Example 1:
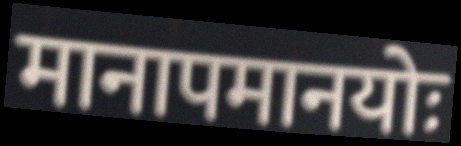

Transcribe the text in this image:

मानापमानयोः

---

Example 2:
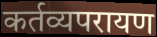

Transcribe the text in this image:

कर्तव्यपरायण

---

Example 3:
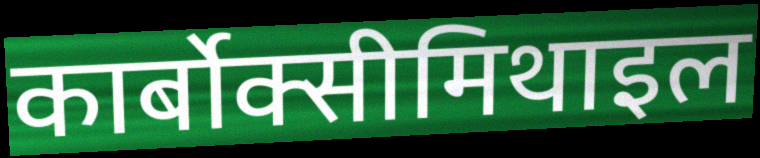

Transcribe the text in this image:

कार्बोक्सीमिथाइल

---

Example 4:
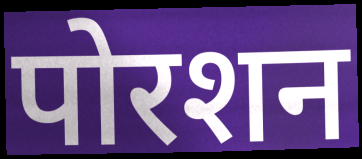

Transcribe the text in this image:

पोरशन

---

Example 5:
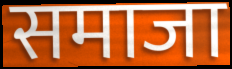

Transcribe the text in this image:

समाजा